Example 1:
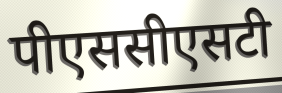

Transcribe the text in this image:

पीएससीएसटी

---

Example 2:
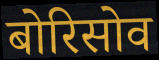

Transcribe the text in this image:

बोरिसोव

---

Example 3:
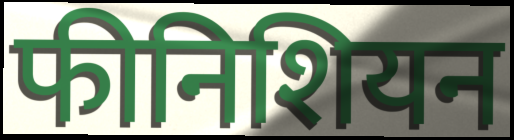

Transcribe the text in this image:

फीनिशियन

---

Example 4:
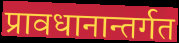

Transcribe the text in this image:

प्रावधानान्तर्गत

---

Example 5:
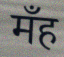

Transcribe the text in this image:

मँह